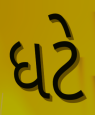
ધટે